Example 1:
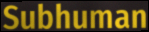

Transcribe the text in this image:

Subhuman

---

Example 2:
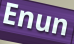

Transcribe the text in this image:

Enun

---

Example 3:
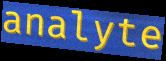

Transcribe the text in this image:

analyte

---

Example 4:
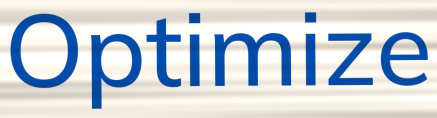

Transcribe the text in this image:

Optimize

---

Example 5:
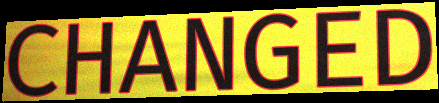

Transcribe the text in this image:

CHANGED